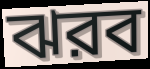
ঝরব